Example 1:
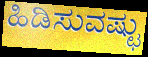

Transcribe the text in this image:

ಹಿಡಿಸುವಷ್ಟು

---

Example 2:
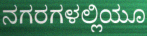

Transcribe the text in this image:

ನಗರಗಳಲ್ಲಿಯೂ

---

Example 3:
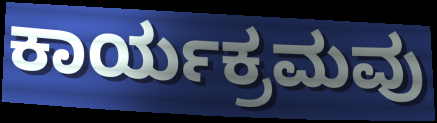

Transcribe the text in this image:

ಕಾರ್ಯಕ್ರಮವು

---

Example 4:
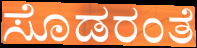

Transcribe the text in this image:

ಸೊಡರಂತೆ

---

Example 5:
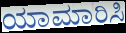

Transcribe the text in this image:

ಯಾಮಾರಿಸಿ